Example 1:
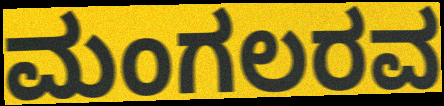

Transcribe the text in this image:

ಮಂಗಲರವ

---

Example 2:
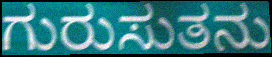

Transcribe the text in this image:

ಗುರುಸುತನು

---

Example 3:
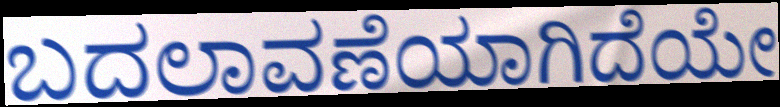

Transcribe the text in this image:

ಬದಲಾವಣೆಯಾಗಿದೆಯೇ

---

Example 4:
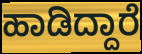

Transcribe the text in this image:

ಹಾಡಿದ್ದಾರೆ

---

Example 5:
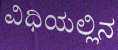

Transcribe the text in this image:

ವಿಧಿಯಲ್ಲಿನ